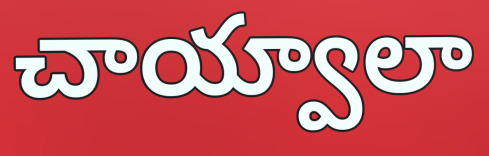
చాయ్వాలా